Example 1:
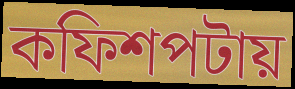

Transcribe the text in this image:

কফিশপটায়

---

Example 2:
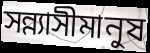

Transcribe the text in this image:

সন্ন্যাসীমানুষ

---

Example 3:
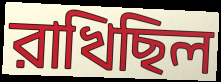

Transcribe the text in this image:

রাখিছিল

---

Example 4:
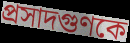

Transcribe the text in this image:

প্রসাদগুণকে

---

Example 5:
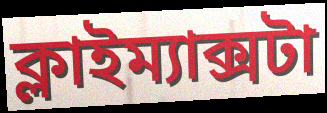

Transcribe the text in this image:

ক্লাইম্যাক্সটা